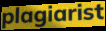
plagiarist